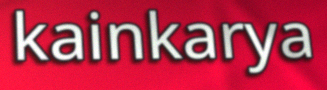
kainkarya